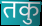
तकु